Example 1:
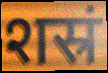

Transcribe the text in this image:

शस्रं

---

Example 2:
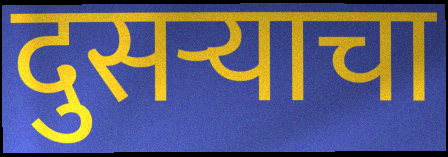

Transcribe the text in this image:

दुसऱ्याचा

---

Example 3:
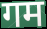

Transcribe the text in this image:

गम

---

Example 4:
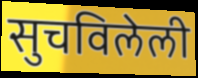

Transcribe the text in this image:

सुचविलेली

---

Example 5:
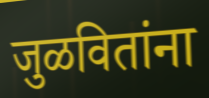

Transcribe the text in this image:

जुळवितांना